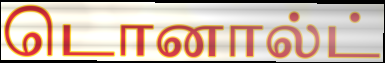
டொனால்ட்